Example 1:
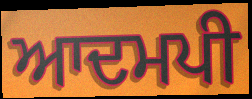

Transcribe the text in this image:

ਆਦਮਪੀ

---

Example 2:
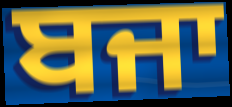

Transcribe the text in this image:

ਬਜਾ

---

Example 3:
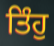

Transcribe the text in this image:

ਤਿੰਹੁ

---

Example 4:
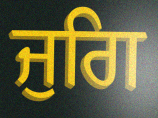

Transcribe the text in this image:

ਜੁਗਿ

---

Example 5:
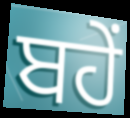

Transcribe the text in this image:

ਬਹੇਂ